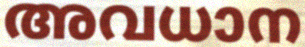
അവധാന